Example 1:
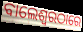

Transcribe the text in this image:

ବାଲେଶ୍ଵରଠାରେ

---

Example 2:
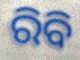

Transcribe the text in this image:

ରିବି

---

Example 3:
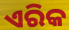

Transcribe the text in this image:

ଏରିକ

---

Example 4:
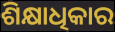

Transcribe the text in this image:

ଶିକ୍ଷାଧିକାର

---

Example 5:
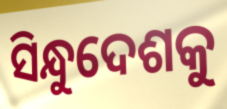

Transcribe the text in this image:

ସିନ୍ଧୁଦେଶକୁ